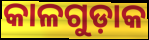
କାଳଗୁଡ଼ାକ